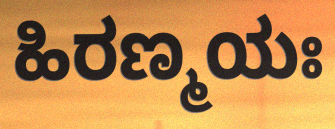
ಹಿರಣ್ಮಯಃ